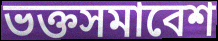
ভক্তসমাবেশ